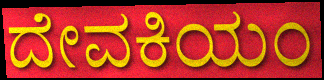
ದೇವಕಿಯಂ